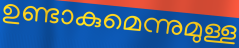
ഉണ്ടാകുമെന്നുമുള്ള